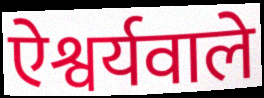
ऐश्वर्यवाले